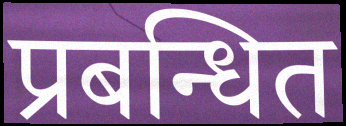
प्रबन्धित